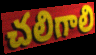
చలిగాలి